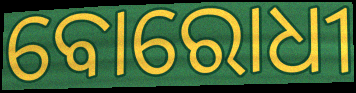
ବୋରୋଧୀ